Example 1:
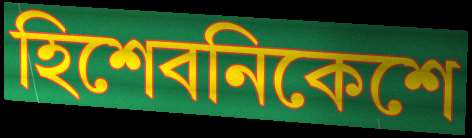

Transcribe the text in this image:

হিশেবনিকেশে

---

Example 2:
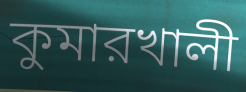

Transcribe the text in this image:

কুমারখালী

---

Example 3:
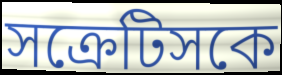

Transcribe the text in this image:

সক্রেটিসকে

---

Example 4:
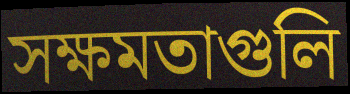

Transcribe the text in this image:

সক্ষমতাগুলি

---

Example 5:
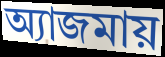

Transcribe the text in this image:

অ্যাজমায়